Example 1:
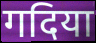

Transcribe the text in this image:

गदिया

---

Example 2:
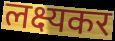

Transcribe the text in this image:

लक्ष्यकर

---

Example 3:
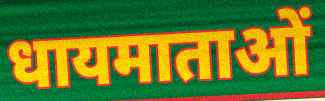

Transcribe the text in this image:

धायमाताओं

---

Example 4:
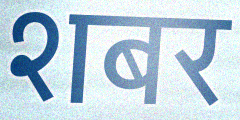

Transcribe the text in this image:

शबर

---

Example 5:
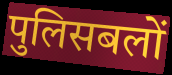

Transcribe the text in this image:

पुलिसबलों